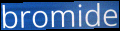
bromide